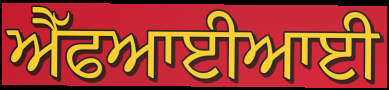
ਐੱਫਆਈਆਈ